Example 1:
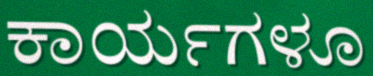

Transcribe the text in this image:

ಕಾರ್ಯಗಳೂ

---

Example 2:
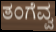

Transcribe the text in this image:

ತಂಗೆವ್ವ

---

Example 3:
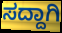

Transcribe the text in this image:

ಸದ್ದಾಗಿ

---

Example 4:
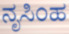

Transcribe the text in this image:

ನೃಸಿಂಹ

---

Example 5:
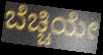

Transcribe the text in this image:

ಬೆಚ್ಚಿಯೇ